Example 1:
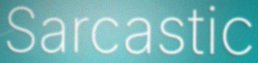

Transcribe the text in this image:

Sarcastic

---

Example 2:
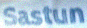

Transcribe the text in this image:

Sastun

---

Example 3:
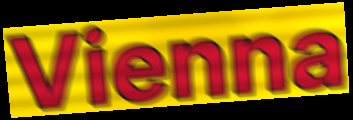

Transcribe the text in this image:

Vienna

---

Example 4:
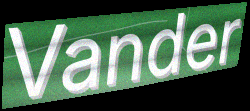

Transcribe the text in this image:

Vander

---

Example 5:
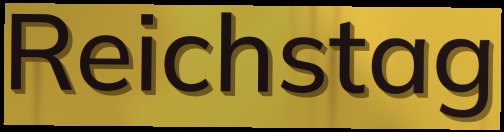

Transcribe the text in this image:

Reichstag